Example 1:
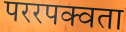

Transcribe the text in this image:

पररपक्वता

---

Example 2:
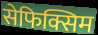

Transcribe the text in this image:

सेफिक्सिम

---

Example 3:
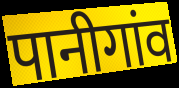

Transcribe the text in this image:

पानीगांव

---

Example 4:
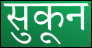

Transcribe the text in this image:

सुकून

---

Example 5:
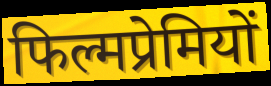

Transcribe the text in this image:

फिल्मप्रेमियों